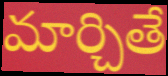
మార్చితే